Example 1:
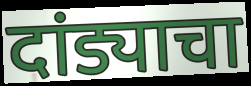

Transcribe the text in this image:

दांड्याचा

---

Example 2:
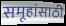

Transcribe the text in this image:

समूहांसाठी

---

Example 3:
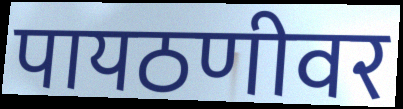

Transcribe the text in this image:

पायठणीवर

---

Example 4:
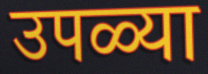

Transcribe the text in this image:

उपळ्या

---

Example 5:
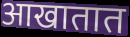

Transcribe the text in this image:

आखातात